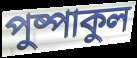
পুষ্পাকুল